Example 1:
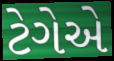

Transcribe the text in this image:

ટેગેએ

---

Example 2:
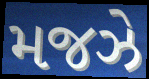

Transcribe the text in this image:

મજઝે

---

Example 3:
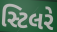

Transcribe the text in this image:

સ્ટિલરે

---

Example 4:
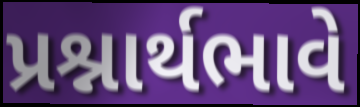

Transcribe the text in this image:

પ્રશ્નાર્થભાવે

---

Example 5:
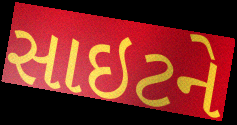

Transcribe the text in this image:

સાઇટને